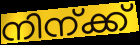
നിന്ക്ക്